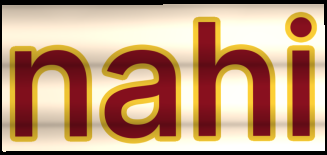
nahi